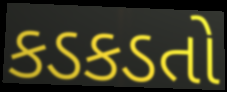
કડકડતો